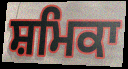
ਸ਼ਮਿਕਾ